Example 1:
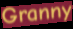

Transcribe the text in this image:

Granny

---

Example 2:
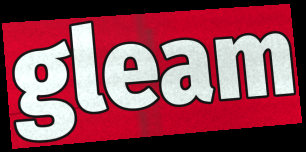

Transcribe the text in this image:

gleam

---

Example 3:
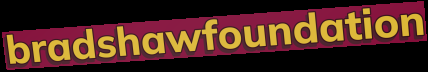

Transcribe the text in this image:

bradshawfoundation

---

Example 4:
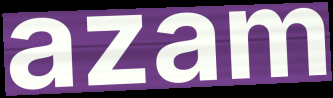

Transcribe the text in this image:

azam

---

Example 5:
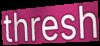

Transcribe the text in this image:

thresh